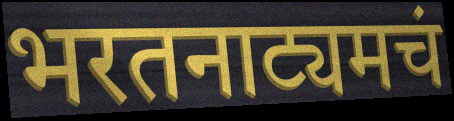
भरतनाट्यमचं